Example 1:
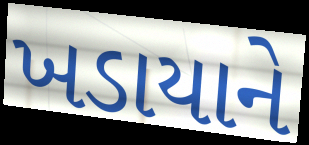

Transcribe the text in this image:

ખડાયાને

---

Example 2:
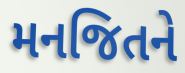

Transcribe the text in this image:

મનજિતને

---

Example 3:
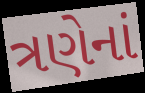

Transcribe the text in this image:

ત્રણેનાં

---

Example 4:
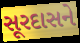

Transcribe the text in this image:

સૂરદાસને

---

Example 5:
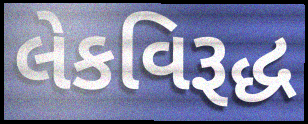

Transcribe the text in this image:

લેકવિરૂદ્ધ